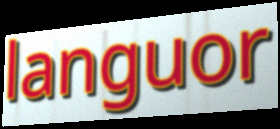
languor